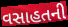
વસાહતની